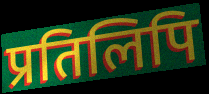
प्रतिलिपि